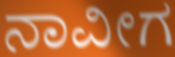
ನಾವೀಗ